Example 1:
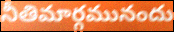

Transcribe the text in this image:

నీతిమార్గమునందు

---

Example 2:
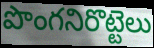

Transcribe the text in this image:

పొంగనిరొట్టెలు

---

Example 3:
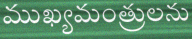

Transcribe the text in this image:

ముఖ్యమంత్రులను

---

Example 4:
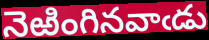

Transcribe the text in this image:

నెఱింగినవాఁడు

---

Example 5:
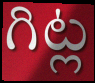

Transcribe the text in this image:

గిట్ల